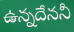
ఉన్నదేననీ